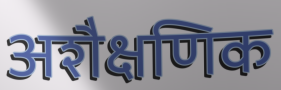
अशैक्षणिक